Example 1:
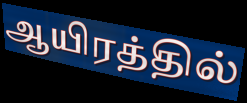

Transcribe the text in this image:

ஆயிரத்தில்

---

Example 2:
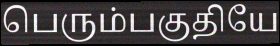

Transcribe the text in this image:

பெரும்பகுதியே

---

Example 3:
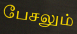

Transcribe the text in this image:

பேசலும்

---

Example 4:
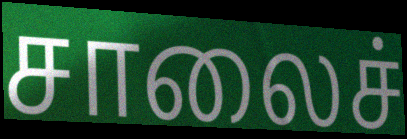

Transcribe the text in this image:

சாலைச்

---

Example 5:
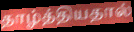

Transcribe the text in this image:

தாழ்த்தியதால்